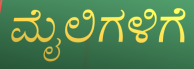
ಮೈಲಿಗಳಿಗೆ